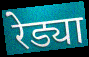
रेड्या